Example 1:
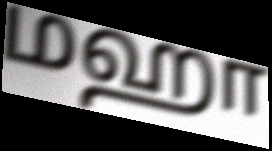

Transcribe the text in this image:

மஹா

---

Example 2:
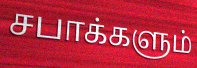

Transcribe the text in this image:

சபாக்களும்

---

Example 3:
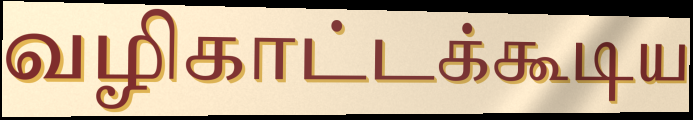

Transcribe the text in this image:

வழிகாட்டக்கூடிய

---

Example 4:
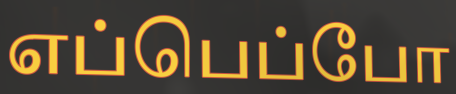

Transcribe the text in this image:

எப்பெப்போ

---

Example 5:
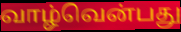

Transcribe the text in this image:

வாழ்வென்பது